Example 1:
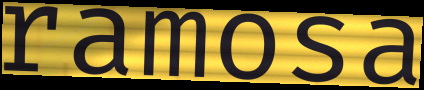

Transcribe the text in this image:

ramosa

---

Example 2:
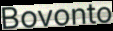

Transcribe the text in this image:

Bovonto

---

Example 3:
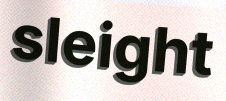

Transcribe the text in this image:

sleight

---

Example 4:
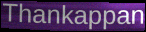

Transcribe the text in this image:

Thankappan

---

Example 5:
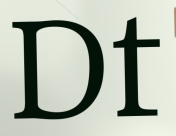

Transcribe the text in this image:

Dt